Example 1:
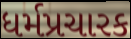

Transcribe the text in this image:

ધર્મપ્રચારક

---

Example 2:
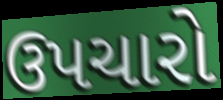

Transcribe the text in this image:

ઉપચારો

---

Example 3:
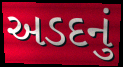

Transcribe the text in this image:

અડદનું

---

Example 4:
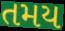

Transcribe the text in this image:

તમય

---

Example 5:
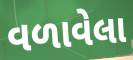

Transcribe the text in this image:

વળાવેલા